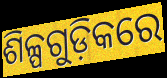
ଶିଳ୍ପଗୁଡ଼ିକରେ